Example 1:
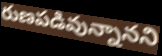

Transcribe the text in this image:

రుణపడివున్నానని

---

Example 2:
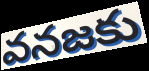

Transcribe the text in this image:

వనజకు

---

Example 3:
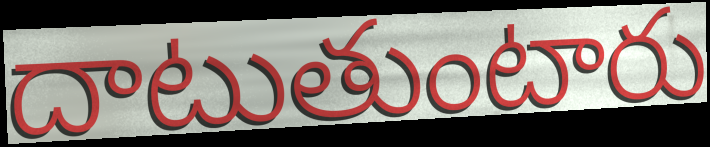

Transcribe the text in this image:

దాటుతుంటారు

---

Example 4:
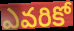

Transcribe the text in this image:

ఎవరికో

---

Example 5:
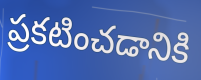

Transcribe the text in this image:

ప్రకటించడానికి